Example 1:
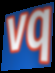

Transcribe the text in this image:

vq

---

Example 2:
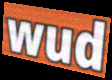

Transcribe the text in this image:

wud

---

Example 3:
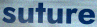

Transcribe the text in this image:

suture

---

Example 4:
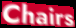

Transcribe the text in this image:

Chairs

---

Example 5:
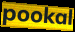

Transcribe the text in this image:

pookal